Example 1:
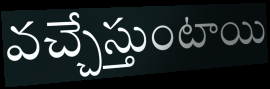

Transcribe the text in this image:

వచ్చేస్తుంటాయి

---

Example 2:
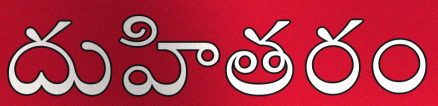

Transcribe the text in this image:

దుహితరం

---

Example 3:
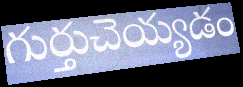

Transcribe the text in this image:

గుర్తుచెయ్యడం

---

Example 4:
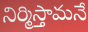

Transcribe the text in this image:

నిర్మిస్తామనే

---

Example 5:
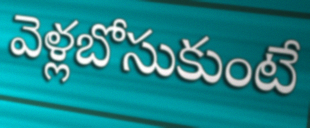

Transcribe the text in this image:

వెళ్లబోసుకుంటే